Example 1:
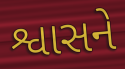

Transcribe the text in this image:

શ્વાસને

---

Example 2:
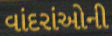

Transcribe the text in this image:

વાંદરાંઓની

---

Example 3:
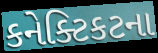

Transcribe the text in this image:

કનેક્ટિકટના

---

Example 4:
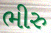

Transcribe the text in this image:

ભીરુ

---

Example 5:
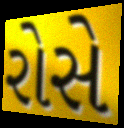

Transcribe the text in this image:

રોસે